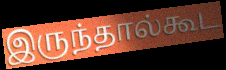
இருந்தால்கூட